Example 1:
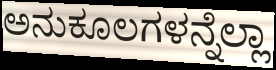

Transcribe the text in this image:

ಅನುಕೂಲಗಳನ್ನೆಲ್ಲಾ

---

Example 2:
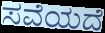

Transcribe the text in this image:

ಸವೆಯದೆ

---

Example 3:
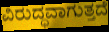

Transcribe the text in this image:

ವಿರುದ್ಧವಾಗುತ್ತದೆ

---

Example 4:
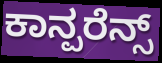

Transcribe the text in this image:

ಕಾನ್ಪರೆನ್ಸ್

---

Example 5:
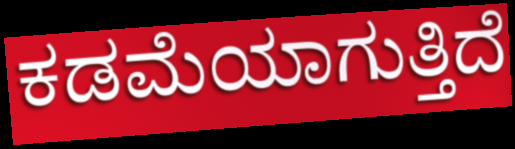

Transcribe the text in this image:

ಕಡಮೆಯಾಗುತ್ತಿದೆ